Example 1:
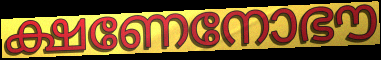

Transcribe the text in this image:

ക്ഷണേനോഭൗ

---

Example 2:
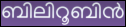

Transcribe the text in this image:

ബിലിറൂബിൻ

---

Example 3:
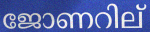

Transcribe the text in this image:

ജോണറില്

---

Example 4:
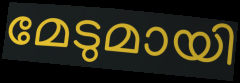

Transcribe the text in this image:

മേടുമായി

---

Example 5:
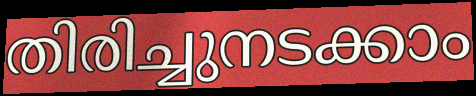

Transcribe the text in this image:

തിരിച്ചുനടക്കാം